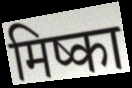
मिष्का